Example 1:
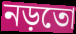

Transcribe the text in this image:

নড়তো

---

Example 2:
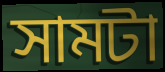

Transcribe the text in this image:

সামটা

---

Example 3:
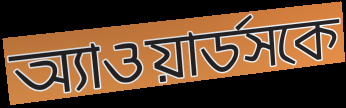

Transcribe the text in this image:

অ্যাওয়ার্ডসকে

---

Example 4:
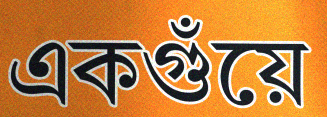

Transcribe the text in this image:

একগুঁয়ে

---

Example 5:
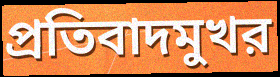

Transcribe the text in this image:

প্রতিবাদমুখর